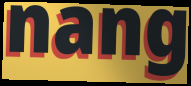
nang